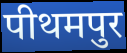
पीथमपुर